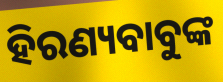
ହିରଣ୍ୟବାବୁଙ୍କ